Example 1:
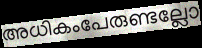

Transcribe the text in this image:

അധികംപേരുണ്ടല്ലോ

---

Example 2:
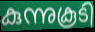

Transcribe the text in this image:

കുന്നുകൂടി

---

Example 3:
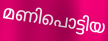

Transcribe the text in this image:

മണിപൊട്ടിയ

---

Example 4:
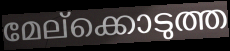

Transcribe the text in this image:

മേല്ക്കൊടുത്ത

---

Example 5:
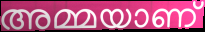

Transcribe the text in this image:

അമ്മയാണ്